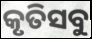
କୃତିସବୁ